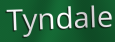
Tyndale